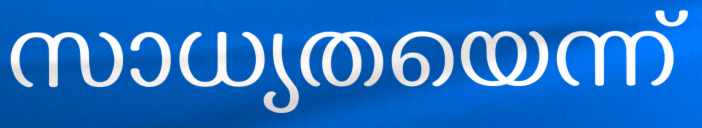
സാധ്യതയെന്ന്